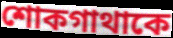
শোকগাথাকে